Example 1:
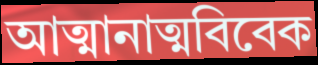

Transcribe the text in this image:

আত্মানাত্মবিবেক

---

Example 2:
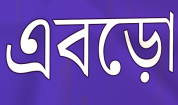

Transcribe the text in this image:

এবড়ো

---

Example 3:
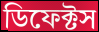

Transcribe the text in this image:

ডিফেক্টস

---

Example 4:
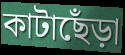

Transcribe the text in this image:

কাটাছেঁড়া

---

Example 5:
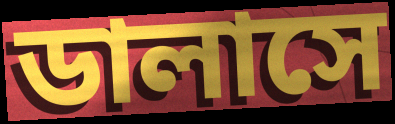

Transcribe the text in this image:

ডালাসে